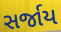
સર્જાય